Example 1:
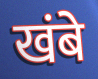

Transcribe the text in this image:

खंबे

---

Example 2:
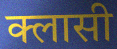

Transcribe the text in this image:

क्लासी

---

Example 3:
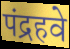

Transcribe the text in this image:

पंद्रहवे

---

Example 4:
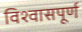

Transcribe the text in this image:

विश्वासपूर्ण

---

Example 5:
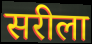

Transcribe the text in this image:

सरीला